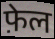
फ़ेल